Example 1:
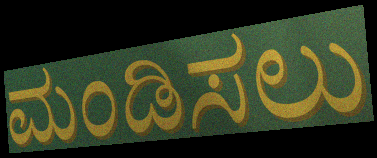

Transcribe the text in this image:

ಮಂಡಿಸಲು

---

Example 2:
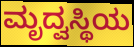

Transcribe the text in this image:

ಮೃದ್ವಸ್ಥಿಯ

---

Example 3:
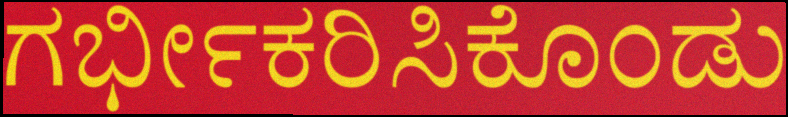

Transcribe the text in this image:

ಗರ್ಭೀಕರಿಸಿಕೊಂಡು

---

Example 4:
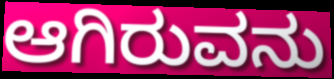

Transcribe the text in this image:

ಆಗಿರುವನು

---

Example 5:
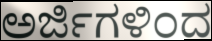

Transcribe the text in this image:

ಅರ್ಜಿಗಳಿಂದ